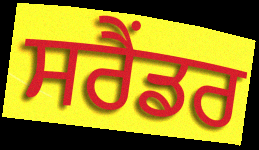
ਸਰੈਂਡਰ